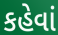
કહેવાં